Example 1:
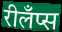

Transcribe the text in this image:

रीलँप्स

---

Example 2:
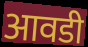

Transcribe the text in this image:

आवडी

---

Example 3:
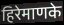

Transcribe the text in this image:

हिरेमाणके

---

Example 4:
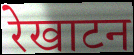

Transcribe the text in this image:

रेखाटन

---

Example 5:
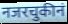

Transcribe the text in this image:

नजरचुकीनं